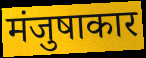
मंजुषाकार